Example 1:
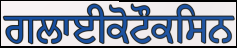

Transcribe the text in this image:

ਗਲਾਈਕੋਟੌਕਸਿਨ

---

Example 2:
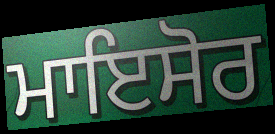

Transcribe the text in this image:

ਮਾਇਸੋਰ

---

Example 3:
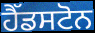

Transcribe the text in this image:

ਹੈੱਡਸਟੋਨ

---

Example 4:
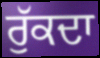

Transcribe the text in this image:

ਰੁੱਕਦਾ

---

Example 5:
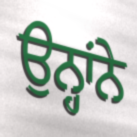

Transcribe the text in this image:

ਉਨ੍ਹਾਂਨੇ